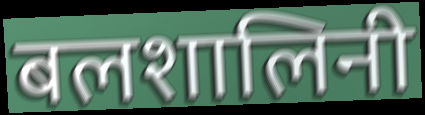
बलशालिनी